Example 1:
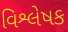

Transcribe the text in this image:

વિશ્લેષક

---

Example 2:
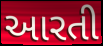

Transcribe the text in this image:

આરતી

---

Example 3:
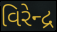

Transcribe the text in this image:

વિરેન્દ્ર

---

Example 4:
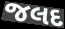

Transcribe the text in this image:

જલદ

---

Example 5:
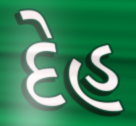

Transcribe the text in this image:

દેહ